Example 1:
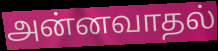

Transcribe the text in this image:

அன்னவாதல்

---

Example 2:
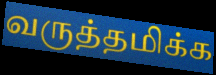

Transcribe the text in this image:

வருத்தமிக்க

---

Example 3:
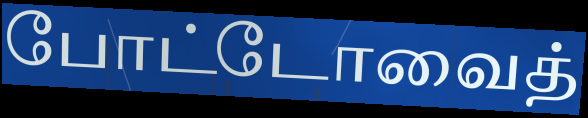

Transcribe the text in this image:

போட்டோவைத்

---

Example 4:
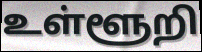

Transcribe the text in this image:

உள்ளூறி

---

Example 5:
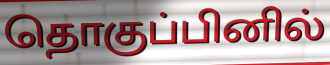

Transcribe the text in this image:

தொகுப்பினில்